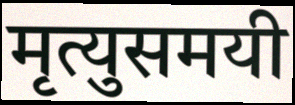
मृत्युसमयी